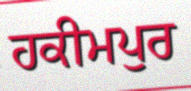
ਹਕੀਮਪੁਰ